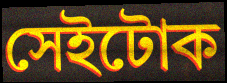
সেইটোক